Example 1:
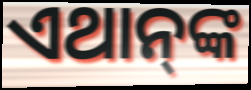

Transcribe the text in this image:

ଏଥାନ୍‍ଙ୍କ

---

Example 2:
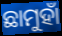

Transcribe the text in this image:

ଛାମୁହାଁ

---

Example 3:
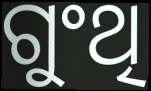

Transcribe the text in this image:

ଗୁଂଥି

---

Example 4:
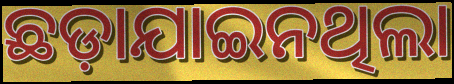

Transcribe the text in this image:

ଛଡ଼ାଯାଇନଥିଲା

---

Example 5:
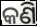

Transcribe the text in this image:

କଣି